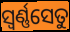
ସ୍ଵର୍ଣ୍ଣସେତୁ